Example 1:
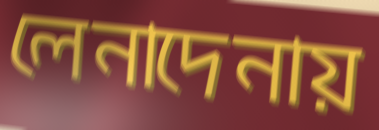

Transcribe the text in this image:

লেনাদেনায়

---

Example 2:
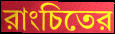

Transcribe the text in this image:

রাংচিতের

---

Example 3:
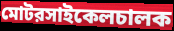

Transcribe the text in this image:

মোটরসাইকেলচালক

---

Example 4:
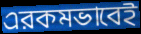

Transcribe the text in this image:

এরকমভাবেই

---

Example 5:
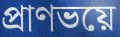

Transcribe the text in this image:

প্রাণভয়ে